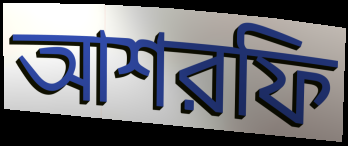
আশরফি